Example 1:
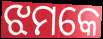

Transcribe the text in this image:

ଝମକେ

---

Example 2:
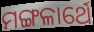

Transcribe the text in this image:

ମଙ୍ଗଳାର୍ଥେ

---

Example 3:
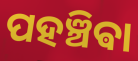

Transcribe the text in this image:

ପହଞ୍ଚିଵା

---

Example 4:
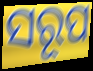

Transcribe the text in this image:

ସରୂପ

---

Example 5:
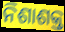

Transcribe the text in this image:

ନିଶାଶକ୍ତ